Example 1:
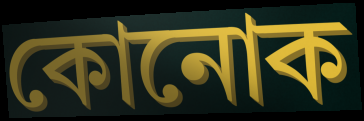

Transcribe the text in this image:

কোনোক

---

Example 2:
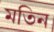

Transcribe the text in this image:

মতিন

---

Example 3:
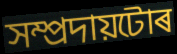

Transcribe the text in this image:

সম্প্ৰদায়টোৰ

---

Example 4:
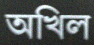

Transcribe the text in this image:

অখিল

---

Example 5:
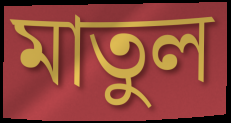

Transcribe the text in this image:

মাতুল